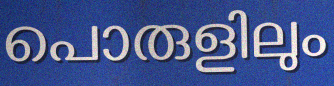
പൊരുളിലും